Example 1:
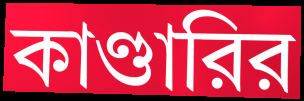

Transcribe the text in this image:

কাণ্ডারির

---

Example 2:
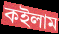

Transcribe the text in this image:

কইলাম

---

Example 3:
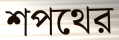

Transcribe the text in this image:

শপথের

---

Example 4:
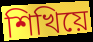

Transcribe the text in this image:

শিখিয়ে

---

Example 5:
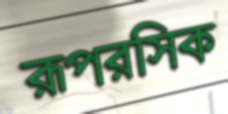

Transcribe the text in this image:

রূপরসিক